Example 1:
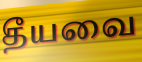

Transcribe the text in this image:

தீயவை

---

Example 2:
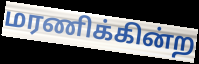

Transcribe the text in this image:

மரணிக்கின்ற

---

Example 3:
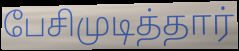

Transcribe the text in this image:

பேசிமுடித்தார்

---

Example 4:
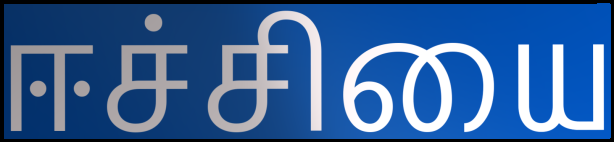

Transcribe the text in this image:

ஈச்சியை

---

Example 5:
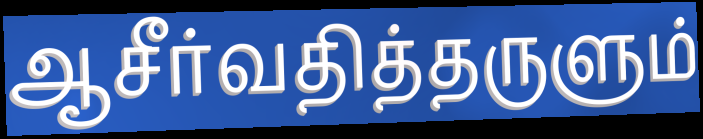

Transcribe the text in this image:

ஆசீர்வதித்தருளும்